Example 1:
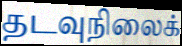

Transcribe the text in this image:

தடவுநிலைக்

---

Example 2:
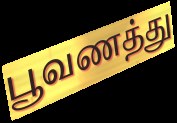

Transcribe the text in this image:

பூவணத்து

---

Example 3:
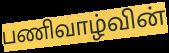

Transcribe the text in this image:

பணிவாழ்வின்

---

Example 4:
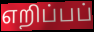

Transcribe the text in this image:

எறிப்பப்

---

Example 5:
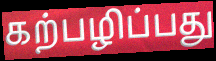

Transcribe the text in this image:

கற்பழிப்பது